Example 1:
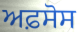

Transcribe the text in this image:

ਅਫ਼ਸੋਸ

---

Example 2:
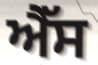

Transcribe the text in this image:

ਐੱਸ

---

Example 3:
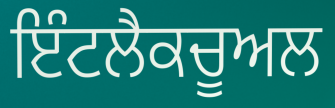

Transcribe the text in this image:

ਇੰਟਲੈਕਚੂਅਲ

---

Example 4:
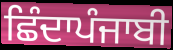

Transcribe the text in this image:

ਛਿੰਦਾਪੰਜਾਬੀ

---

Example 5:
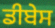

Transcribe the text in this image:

ਡੀਬੇਸ